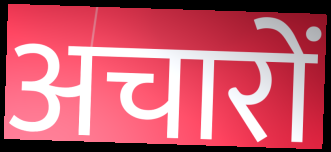
अचारों